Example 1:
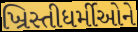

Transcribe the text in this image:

ખ્રિસ્તીધર્મીઓને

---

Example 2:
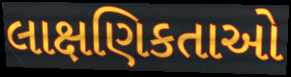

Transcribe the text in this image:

લાક્ષણિકતાઓ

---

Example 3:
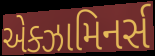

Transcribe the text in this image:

એક્ઝામિનર્સ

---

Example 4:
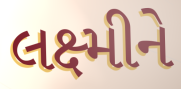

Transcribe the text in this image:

લક્ષ્મીને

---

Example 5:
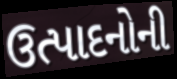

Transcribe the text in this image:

ઉત્પાદનોની